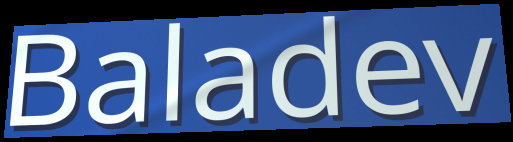
Baladev